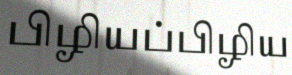
பிழியப்பிழிய